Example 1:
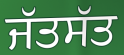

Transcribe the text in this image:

ਜੱਤਸੱਤ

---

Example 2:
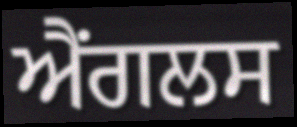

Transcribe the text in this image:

ਐਂਗਲਸ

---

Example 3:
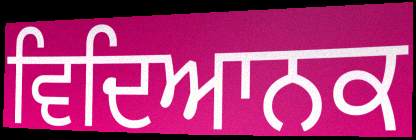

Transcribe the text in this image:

ਵਿਦਿਆਨਕ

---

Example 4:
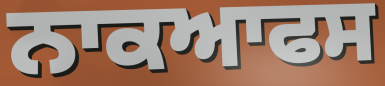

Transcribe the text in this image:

ਨਾਕਆਫਸ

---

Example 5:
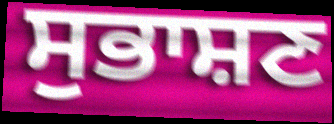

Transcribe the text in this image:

ਸੁਭਾਸ਼ਣ